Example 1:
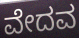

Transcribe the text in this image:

ವೇದವ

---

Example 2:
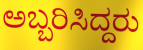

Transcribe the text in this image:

ಅಬ್ಬರಿಸಿದ್ದರು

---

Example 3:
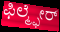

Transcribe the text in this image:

ಫಿಲ್ಮ್ಫೇರ್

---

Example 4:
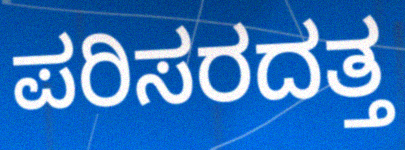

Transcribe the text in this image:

ಪರಿಸರದತ್ತ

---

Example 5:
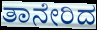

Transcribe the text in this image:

ತಾನೇರಿದ